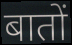
बातों